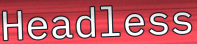
Headless